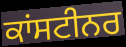
ਕਾਂਸਟੀਨਰ